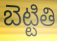
బెట్టితి